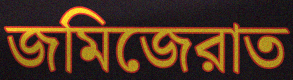
জমিজেরাত